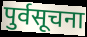
पुर्वसूचना